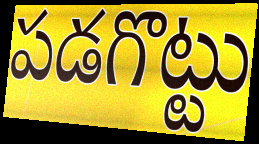
పడగొట్టు